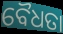
ବୈଧତା